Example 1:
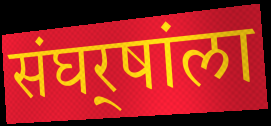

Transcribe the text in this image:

संघर्षांला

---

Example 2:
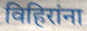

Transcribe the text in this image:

विहिरांना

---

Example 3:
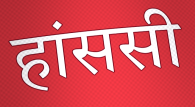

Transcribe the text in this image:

हांससी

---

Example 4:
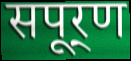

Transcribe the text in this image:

सपूर्ण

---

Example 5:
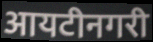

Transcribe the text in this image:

आयटीनगरी